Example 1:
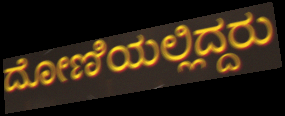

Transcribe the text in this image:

ದೋಣಿಯಲ್ಲಿದ್ದರು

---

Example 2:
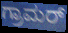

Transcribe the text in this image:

ಗ್ರಾಮರ್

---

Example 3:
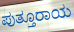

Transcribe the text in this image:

ಪುತ್ತೂರಾಯ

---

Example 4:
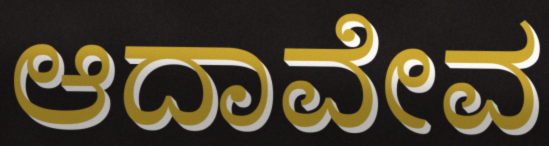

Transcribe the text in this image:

ಆದಾವೇವ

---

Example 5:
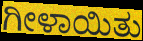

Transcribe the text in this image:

ಗೀಳಾಯಿತು